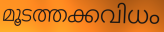
മൂടത്തക്കവിധം